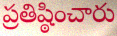
ప్రతిష్ఠించారు